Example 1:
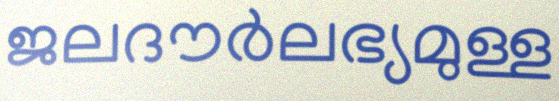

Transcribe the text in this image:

ജലദൗർലഭ്യമുള്ള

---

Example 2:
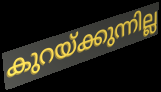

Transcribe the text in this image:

കുറയ്ക്കുന്നില്ല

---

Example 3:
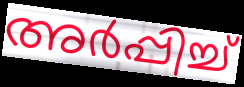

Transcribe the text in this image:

അർപ്പിച്ച്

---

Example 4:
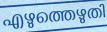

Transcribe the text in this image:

എഴുത്തെഴുതി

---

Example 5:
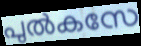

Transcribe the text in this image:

പുൽകസേ